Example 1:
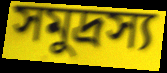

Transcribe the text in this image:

সমুদ্রস্য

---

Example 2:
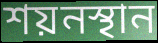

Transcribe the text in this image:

শয়নস্থান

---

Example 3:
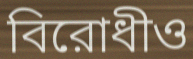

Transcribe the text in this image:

বিরোধীও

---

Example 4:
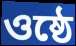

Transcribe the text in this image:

ওষ্ঠে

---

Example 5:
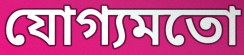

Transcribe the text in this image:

যোগ্যমতো